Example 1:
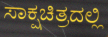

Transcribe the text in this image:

ಸಾಕ್ಷಚಿತ್ರದಲ್ಲಿ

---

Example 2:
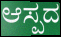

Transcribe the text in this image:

ಆಸ್ಪದ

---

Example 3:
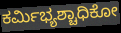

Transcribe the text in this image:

ಕರ್ಮಿಭ್ಯಶ್ಚಾಧಿಕೋ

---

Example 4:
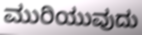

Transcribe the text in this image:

ಮುರಿಯುವುದು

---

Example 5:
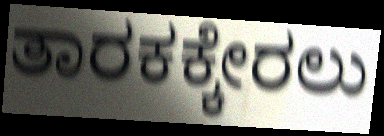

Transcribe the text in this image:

ತಾರಕಕ್ಕೇರಲು